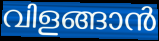
വിളങ്ങാൻ